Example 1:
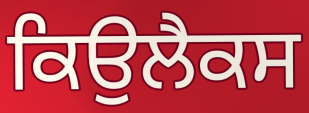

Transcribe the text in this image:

ਕਿਉਲੈਕਸ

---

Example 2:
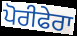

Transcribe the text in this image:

ਪੋਰੀਫੇਰਾ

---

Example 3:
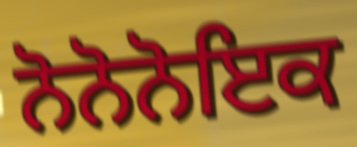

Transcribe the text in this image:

ਨੋਨੋਨੋਇਕ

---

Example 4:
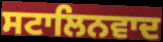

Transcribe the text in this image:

ਸਟਾਲਿਨਵਾਦ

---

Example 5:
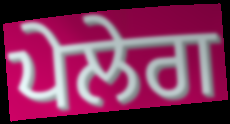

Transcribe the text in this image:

ਪੇਲੇਗ